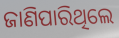
ଜାଣିପାରିଥିଲେ